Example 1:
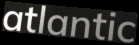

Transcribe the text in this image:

atlantic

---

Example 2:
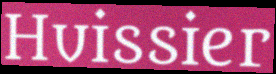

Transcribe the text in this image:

Huissier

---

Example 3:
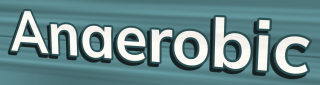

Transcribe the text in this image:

Anaerobic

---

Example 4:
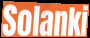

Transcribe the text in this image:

Solanki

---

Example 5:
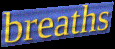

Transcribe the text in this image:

breaths